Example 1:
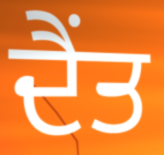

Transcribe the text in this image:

ਦੈਂਤ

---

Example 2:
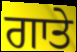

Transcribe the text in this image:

ਗਾਤੇ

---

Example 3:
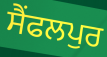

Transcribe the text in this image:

ਸੈਂਫਲਪੁਰ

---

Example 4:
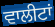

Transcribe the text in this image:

ਵਾਲੀਟਾਂ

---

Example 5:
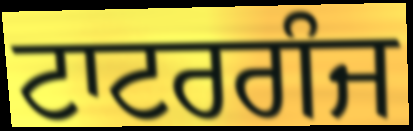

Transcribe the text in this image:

ਟਾਟਰਗੰਜ